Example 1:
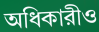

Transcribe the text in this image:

অধিকারীও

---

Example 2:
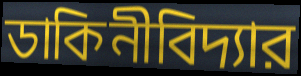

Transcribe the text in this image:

ডাকিনীবিদ্যার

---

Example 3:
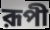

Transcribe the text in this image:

রূপী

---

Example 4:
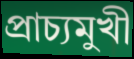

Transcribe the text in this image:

প্রাচ্যমুখী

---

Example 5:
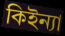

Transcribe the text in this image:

কিইন্যা